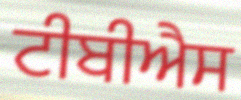
ਟੀਬੀਐਸ